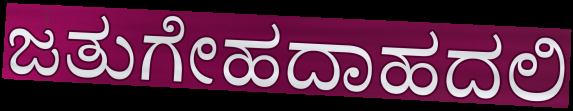
ಜತುಗೇಹದಾಹದಲಿ